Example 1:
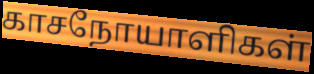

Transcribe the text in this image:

காசநோயாளிகள்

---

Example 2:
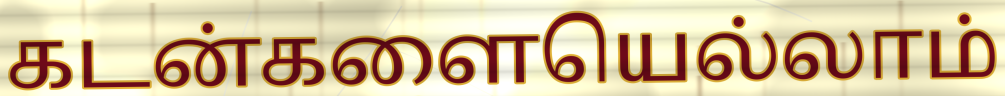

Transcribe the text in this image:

கடன்களையெல்லாம்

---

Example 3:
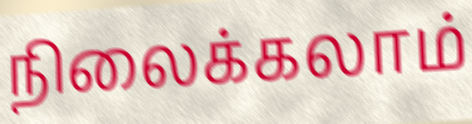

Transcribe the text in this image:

நிலைக்கலாம்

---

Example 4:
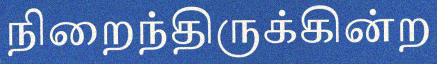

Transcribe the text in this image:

நிறைந்திருக்கின்ற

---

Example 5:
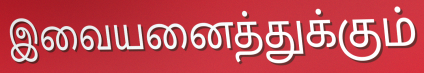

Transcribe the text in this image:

இவையனைத்துக்கும்